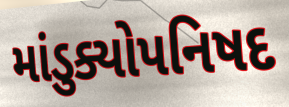
માંડુક્યોપનિષદ